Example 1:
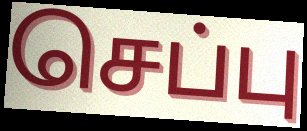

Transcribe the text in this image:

செப்பு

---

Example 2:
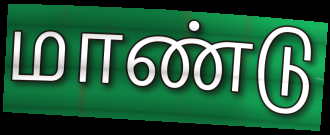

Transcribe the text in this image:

மாண்டு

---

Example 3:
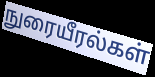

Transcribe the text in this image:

நுரையீரல்கள்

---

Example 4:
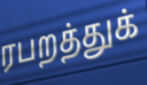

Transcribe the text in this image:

ரபறத்துக்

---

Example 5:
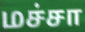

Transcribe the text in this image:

மச்சா